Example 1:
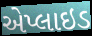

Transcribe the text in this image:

એપ્લાઇડ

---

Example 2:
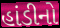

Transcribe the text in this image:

હાંડીનો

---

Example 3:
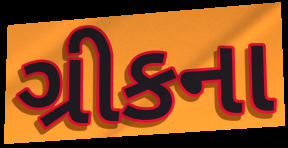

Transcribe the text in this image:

ગ્રીકના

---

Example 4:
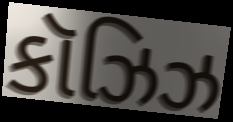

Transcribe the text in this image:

કૉઝિઝ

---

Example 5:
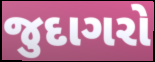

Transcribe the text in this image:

જુદાગરો